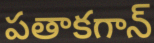
పతాకగాన్